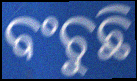
ବଂଚୁଛି